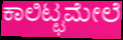
ಕಾಲಿಟ್ಟಮೇಲೆ